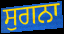
ਸੁਗਨਾ